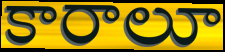
కారాలూ